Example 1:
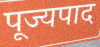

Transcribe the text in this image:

पूज्यपाद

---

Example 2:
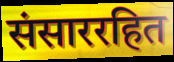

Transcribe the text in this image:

संसाररहित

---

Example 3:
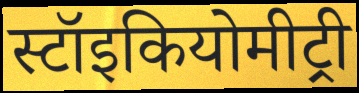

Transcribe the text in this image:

स्टॉइकियोमीट्री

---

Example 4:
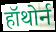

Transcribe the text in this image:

हॉथोर्न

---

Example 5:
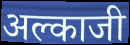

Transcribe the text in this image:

अल्काजी